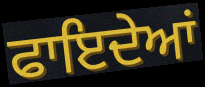
ਫਾਇਦੇਆਂ